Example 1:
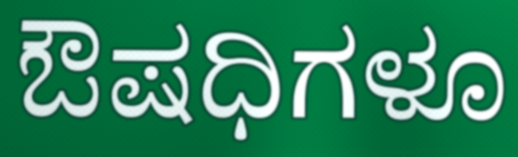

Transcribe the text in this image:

ಔಷಧಿಗಳೂ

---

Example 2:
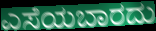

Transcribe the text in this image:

ಎಸೆಯಬಾರದು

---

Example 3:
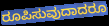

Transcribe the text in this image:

ರೂಪಿಸುವುದಾದರೂ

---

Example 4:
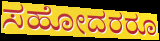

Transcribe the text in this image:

ಸಹೋದರರೂ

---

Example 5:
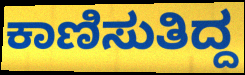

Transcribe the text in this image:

ಕಾಣಿಸುತಿದ್ದ